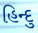
હિન્દુ